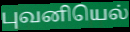
புவனியெல்